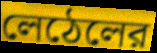
লেঠেলের